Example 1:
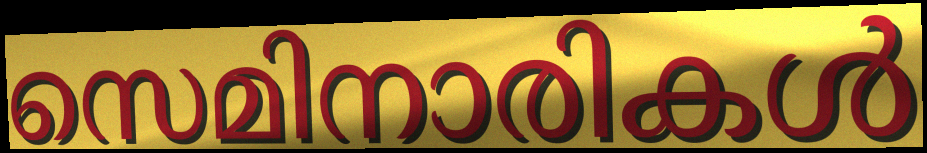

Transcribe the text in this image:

സെമിനാരികൾ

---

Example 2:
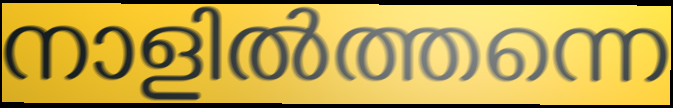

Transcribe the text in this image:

നാളിൽത്തന്നെ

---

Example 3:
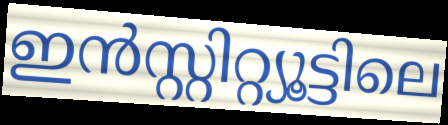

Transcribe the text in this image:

ഇൻസ്റ്റിറ്റ്യൂട്ടിലെ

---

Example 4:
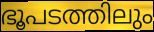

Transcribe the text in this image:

ഭൂപടത്തിലും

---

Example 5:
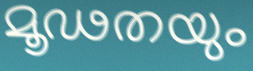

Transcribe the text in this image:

മൂഢതയും